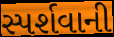
સ્પર્શવાની